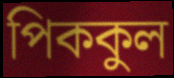
পিককুল